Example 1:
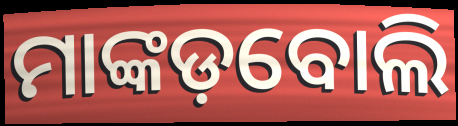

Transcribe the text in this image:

ମାଙ୍କଡ଼ବୋଲି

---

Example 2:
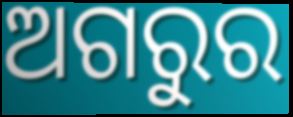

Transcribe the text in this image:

ଅଗରୁର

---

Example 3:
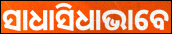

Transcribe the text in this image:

ସାଧାସିଧାଭାବେ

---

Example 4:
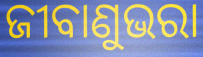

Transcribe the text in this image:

ଜୀବାଣୁଭରା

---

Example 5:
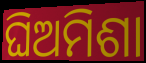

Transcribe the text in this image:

ଘିଅମିଶା